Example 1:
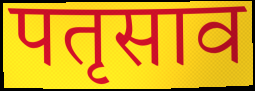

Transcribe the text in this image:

पतृसाव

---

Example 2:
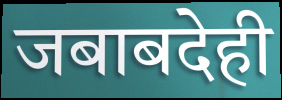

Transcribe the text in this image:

जबाबदेही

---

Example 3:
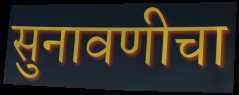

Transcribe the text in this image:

सुनावणीचा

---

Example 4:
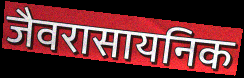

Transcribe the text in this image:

जैवरासायनिक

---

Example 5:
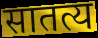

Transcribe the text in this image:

सातत्य